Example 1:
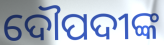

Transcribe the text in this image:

ଦୌପଦୀଙ୍କ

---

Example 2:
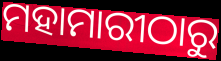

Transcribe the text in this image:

ମହାମାରୀଠାରୁ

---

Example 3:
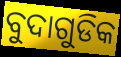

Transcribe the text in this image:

ବୁଦାଗୁଡିକ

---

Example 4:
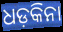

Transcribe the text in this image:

ଧଡ଼କିନା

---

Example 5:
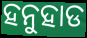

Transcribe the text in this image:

ହନୁହାଡ